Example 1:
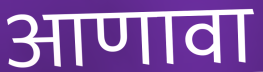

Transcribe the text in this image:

आणावा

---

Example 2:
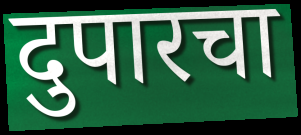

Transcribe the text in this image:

दुपारचा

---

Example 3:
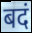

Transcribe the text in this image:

बदं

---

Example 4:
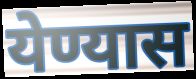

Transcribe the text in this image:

येण्यास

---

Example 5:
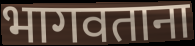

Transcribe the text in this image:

भागवताना